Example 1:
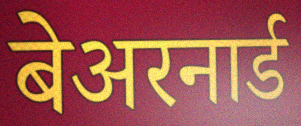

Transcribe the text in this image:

बेअरनार्ड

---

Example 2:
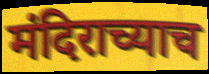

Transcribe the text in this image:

मंदिराच्याच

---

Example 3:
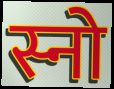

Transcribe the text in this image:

स्नो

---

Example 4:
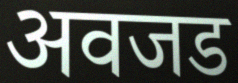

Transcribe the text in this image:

अवजड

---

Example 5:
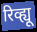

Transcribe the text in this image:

रिव्ह्यू